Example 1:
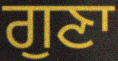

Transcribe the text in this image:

ਗੁਣਾ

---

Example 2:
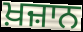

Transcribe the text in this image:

ਖ਼ਜ਼ਾਨ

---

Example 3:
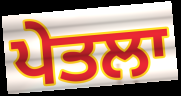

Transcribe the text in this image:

ਪੇਤਲਾ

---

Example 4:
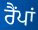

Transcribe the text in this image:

ਰੈਂਪਾਂ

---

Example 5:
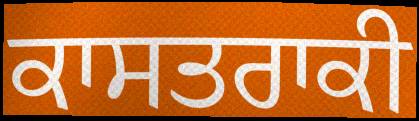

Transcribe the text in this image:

ਕਾਸਤਰਾਕੀ